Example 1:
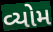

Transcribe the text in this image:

વ્યોમ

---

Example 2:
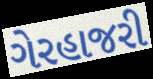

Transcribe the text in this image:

ગેરહાજરી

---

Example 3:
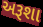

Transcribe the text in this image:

અરૂશા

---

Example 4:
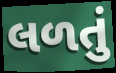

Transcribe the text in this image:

લળતું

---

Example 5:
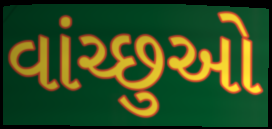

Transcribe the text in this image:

વાંચ્છુઓ